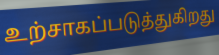
உற்சாகப்படுத்துகிறது